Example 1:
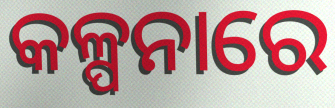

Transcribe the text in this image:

କଳ୍ପନାରେ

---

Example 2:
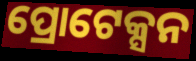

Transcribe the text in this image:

ପ୍ରୋଟେକ୍ସନ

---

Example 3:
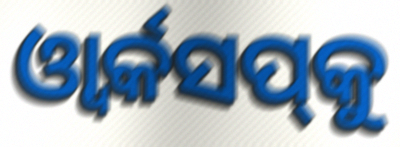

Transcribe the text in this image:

ଓ୍ୱାର୍କସପ୍‌କୁ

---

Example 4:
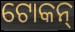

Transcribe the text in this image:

ଟୋକନ୍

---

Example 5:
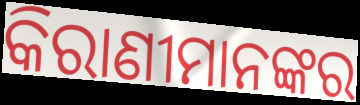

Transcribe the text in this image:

କିରାଣୀମାନଙ୍କର